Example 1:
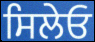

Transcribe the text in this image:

ਸਿਲੇਓ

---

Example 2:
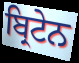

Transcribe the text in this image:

ਬ੍ਰਿਟੇਨ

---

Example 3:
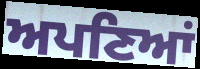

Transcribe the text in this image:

ਅਪਣਿਆਂ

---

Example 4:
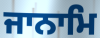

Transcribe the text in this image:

ਜਾਨਾਮਿ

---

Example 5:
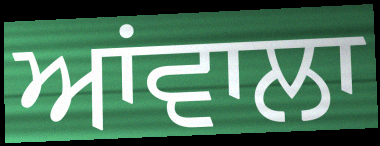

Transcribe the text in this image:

ਆਂਵਾਲਾ